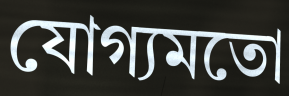
যোগ্যমতো